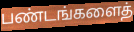
பண்டங்களைத்